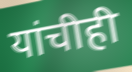
यांचीही